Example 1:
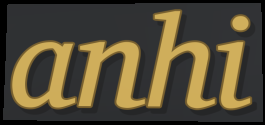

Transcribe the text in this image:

anhi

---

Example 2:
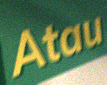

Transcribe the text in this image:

Atau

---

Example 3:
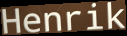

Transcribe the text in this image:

Henrik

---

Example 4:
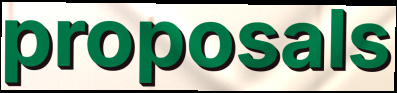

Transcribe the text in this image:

proposals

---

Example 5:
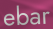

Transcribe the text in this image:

ebar